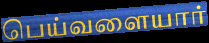
பெய்வளையார்